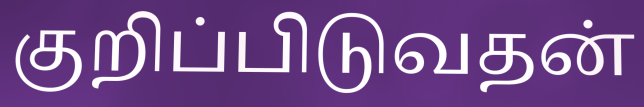
குறிப்பிடுவதன்